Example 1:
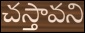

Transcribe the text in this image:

చస్తావని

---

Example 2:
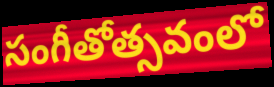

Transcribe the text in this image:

సంగీతోత్సవంలో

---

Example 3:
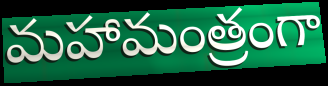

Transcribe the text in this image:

మహామంత్రంగా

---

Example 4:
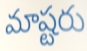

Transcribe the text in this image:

మాష్టరు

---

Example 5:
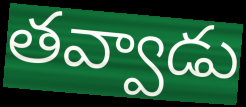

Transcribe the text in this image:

తవ్వాడు